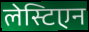
लेस्टिएन